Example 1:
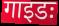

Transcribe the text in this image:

गाइडः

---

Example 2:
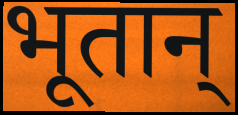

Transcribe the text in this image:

भूतान्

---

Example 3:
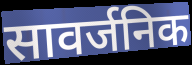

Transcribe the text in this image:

सावर्जनिक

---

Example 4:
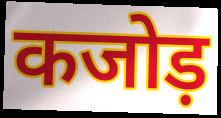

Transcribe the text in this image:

कजोड़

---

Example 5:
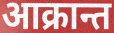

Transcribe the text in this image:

आक्रान्त